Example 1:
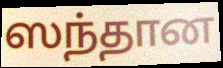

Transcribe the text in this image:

ஸந்தான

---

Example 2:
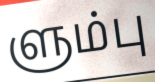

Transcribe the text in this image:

ளும்பு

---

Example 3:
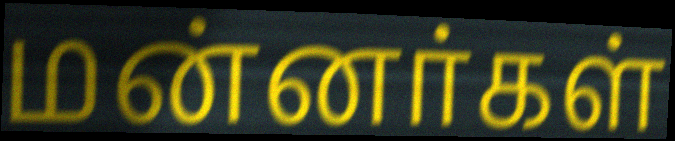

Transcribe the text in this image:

மன்னர்கள்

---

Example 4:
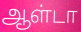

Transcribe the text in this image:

ஆள்டா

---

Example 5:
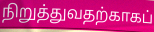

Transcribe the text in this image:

நிறுத்துவதற்காகப்